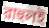
রাহুলই